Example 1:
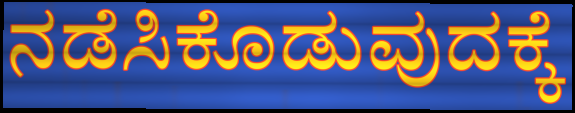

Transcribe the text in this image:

ನಡೆಸಿಕೊಡುವುದಕ್ಕೆ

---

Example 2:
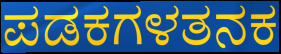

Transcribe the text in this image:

ಪಡಕಗಳತನಕ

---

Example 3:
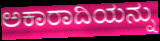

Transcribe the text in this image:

ಅಕಾರಾದಿಯನ್ನು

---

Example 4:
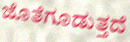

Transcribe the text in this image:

ಜೊತೆಗೂಡುತ್ತದೆ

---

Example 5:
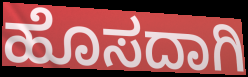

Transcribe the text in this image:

ಹೊಸದಾಗಿ